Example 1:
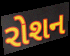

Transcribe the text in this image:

રોશન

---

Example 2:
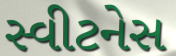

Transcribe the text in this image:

સ્વીટનેસ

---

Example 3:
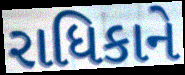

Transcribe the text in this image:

રાધિકાને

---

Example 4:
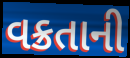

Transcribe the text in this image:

વક્રતાની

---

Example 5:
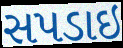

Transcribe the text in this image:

સપડાઇ